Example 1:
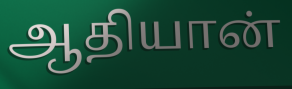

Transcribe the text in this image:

ஆதியான்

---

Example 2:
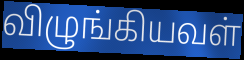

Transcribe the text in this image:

விழுங்கியவள்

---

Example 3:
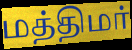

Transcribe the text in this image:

மத்திமர்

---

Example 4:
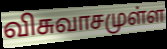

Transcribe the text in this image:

விசுவாசமுள்ள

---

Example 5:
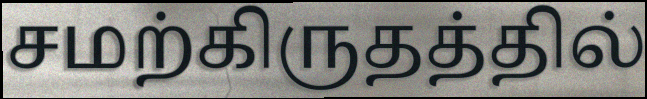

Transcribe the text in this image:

சமற்கிருதத்தில்